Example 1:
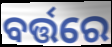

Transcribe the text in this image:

ବର୍ତ୍ତରେ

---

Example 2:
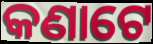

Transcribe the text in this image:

କଣାଟେ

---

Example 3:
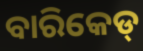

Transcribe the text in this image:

ବାରିକେଡ୍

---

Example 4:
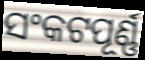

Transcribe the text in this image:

ସଂକଟପୂର୍ଣ୍ଣ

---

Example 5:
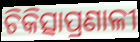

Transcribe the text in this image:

ଚିକିତ୍ସାପ୍ରଣାଳୀ